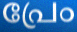
പ്രേം